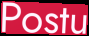
Postu